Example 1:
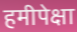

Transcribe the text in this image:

हमीपेक्षा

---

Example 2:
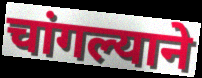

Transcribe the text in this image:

चांगल्याने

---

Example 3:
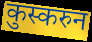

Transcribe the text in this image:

कुस्करुन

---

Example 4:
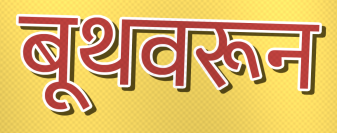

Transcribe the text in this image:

बूथवरून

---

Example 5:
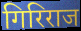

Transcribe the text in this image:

गिरिराज